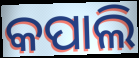
କପାଲି